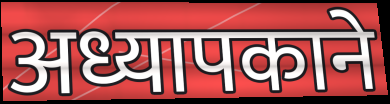
अध्यापकाने